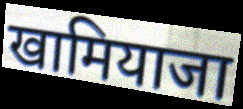
खामियाजा